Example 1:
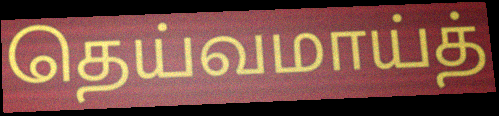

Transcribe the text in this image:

தெய்வமாய்த்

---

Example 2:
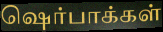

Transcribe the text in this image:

ஷெர்பாக்கள்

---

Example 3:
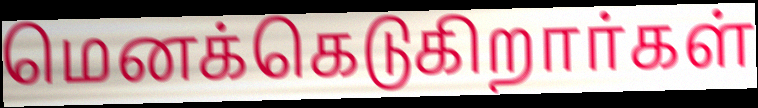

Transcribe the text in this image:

மெனக்கெடுகிறார்கள்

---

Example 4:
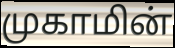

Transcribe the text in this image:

முகாமின்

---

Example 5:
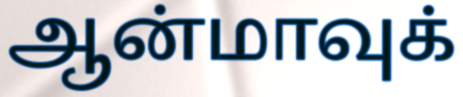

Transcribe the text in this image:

ஆன்மாவுக்